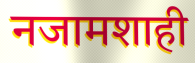
नजामशाही